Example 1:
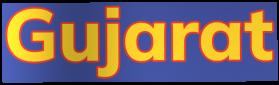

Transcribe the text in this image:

Gujarat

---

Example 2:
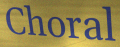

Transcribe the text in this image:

Choral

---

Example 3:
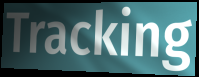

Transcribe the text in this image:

Tracking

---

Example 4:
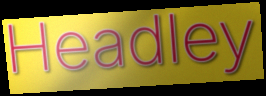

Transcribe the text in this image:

Headley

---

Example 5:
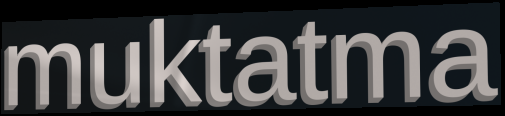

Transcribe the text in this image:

muktatma